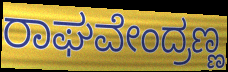
ರಾಘವೇಂದ್ರಣ್ಣ